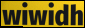
wiwidh